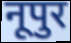
नूपुर